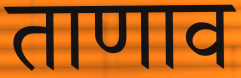
ताणाव